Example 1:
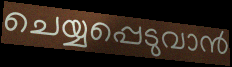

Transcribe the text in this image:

ചെയ്യപ്പെടുവാൻ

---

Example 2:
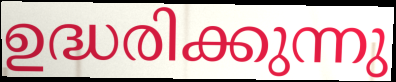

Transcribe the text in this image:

ഉദ്ധരിക്കുന്നു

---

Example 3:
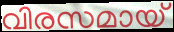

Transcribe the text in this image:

വിരസമായ്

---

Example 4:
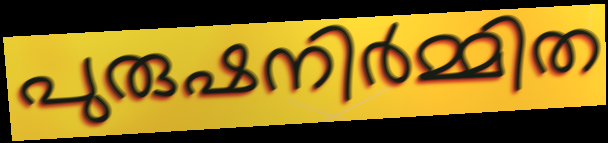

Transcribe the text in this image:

പുരുഷനിർമ്മിത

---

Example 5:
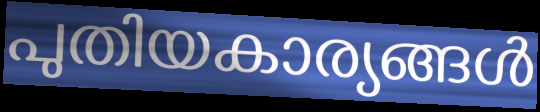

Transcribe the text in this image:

പുതിയകാര്യങ്ങൾ